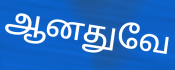
ஆனதுவே